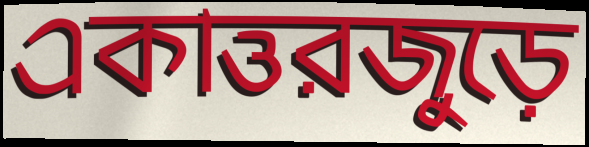
একাত্তরজুড়ে